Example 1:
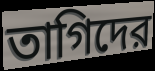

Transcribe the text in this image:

তাগিদের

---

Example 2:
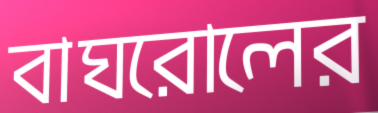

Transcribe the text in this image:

বাঘরোলের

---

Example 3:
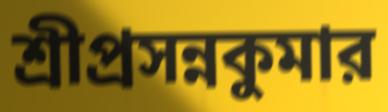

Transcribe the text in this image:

শ্রীপ্রসন্নকুমার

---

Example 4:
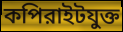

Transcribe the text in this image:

কপিরাইটযুক্ত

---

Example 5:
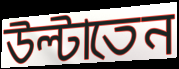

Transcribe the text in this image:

উল্টাতেন